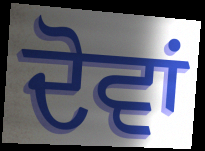
ਦੋਵਾਂ